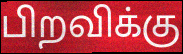
பிறவிக்கு